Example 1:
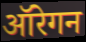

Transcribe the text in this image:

ऑरेगन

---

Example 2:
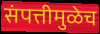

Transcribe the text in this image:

संपत्तीमुळेच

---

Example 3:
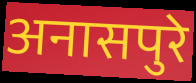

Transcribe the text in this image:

अनासपुरे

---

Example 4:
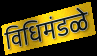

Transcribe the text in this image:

विधिमंडळे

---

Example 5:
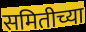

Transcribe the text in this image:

समितीच्या